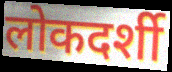
लोकदर्शी